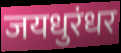
जयधुरंधर